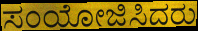
ಸಂಯೋಜಿಸಿದರು